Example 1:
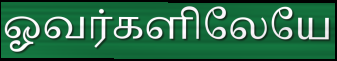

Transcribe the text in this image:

ஓவர்களிலேயே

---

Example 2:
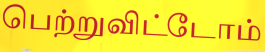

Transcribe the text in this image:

பெற்றுவிட்டோம்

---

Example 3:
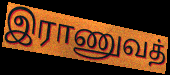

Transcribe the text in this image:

இராணுவத்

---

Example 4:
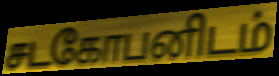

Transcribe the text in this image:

சடகோபனிடம்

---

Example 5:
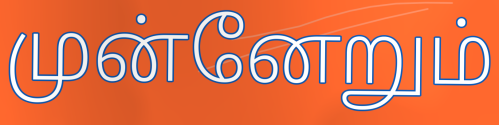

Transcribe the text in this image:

முன்னேறும்